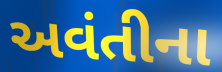
અવંતીના